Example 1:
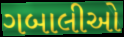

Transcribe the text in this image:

ગબાલીઓ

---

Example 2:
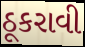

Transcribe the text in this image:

ઠૂકરાવી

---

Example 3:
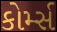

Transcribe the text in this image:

કોર્મ્સ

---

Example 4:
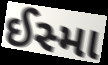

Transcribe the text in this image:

ઈસ્મા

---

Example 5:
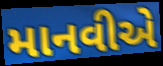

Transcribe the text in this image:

માનવીએ